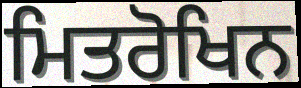
ਮਿਤਰੋਖਿਨ